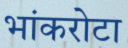
भांकरोटा